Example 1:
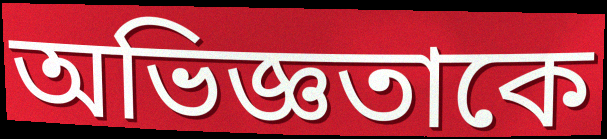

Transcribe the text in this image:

অভিজ্ঞতাকে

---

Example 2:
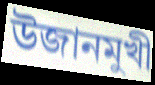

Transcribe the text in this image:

উজানমুখী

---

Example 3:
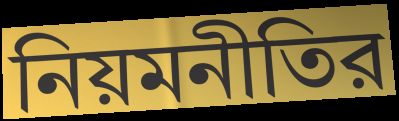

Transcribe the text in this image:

নিয়মনীতির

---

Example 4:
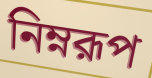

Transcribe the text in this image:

নিম্নরূপ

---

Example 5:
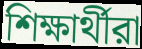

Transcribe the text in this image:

শিক্ষার্থীরা